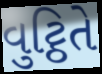
વુટ્ઠિતે